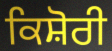
ਕਿਸ਼ੋਰੀ